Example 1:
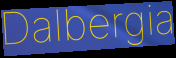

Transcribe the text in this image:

Dalbergia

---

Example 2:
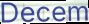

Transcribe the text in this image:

Decem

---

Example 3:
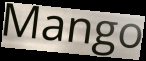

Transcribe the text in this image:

Mango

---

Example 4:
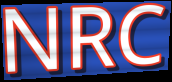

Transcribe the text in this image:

NRC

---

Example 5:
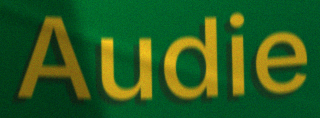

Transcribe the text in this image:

Audie